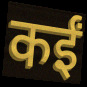
कईं